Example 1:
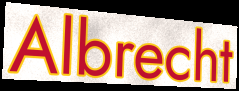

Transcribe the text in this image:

Albrecht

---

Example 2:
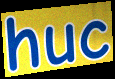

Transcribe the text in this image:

huc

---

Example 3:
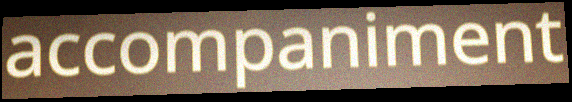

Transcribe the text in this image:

accompaniment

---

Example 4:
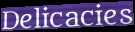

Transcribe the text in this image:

Delicacies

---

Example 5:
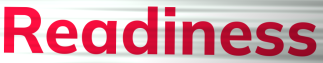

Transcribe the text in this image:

Readiness